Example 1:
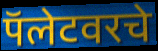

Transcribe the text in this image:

पॅलेटवरचे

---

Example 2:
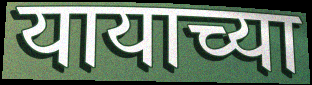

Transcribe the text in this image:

यायाच्या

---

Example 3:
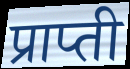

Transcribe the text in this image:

प्राप्ती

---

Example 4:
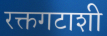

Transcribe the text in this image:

रक्तगटाशी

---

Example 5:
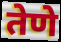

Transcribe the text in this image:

तेणे